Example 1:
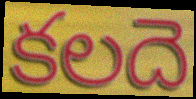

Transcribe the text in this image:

కలదె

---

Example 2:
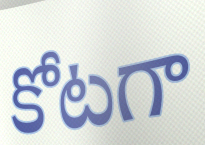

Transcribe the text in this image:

కోటగా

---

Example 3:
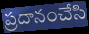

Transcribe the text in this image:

ప్రదానంచేసి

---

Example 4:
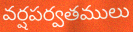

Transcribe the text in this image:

వర్షపర్వతములు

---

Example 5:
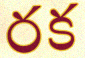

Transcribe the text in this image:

రక